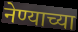
नेण्याच्या